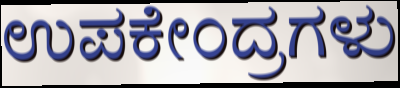
ಉಪಕೇಂದ್ರಗಳು